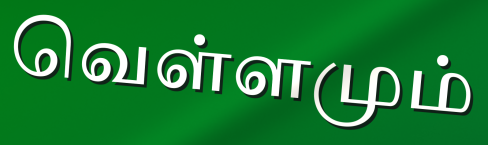
வெள்ளமும்